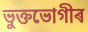
ভুক্তভোগীৰ